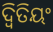
ଦ୍ୱିତିୟଂ